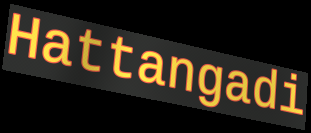
Hattangadi